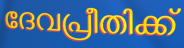
ദേവപ്രീതിക്ക്